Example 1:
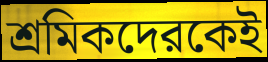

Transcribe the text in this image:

শ্রমিকদেরকেই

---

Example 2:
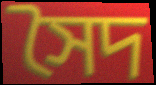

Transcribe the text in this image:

সৈদ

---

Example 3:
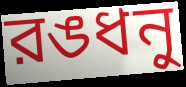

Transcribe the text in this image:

রঙধনু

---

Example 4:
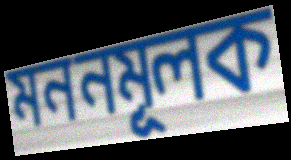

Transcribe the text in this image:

মননমূলক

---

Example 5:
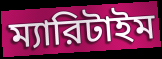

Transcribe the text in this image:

ম্যারিটাইম